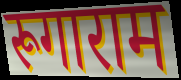
रूगाराम